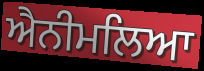
ਐਨੀਮਲਿਆ